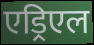
एड्रिएल